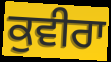
ਕੁਵੀਰਾ